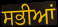
ਸਭੀਆਂ